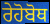
ਰੇਹੋਬੋਥ